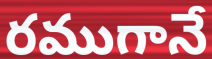
రముగానే